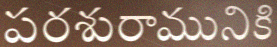
పరశురామునికి